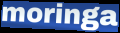
moringa